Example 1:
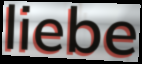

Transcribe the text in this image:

liebe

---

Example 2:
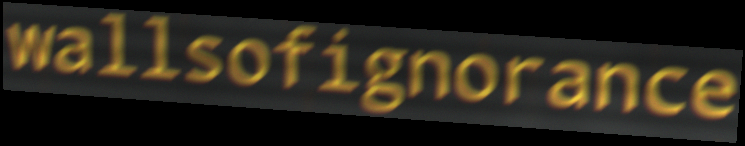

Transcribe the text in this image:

wallsofignorance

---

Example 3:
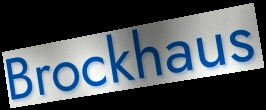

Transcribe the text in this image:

Brockhaus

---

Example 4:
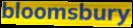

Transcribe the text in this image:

bloomsbury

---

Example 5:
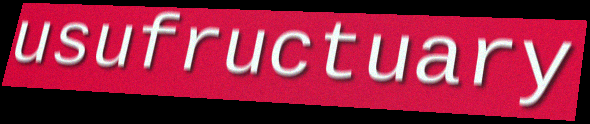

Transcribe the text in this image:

usufructuary